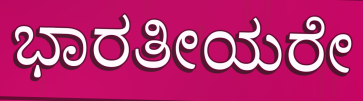
ಭಾರತೀಯರೇ